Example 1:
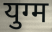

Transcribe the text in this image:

युग्म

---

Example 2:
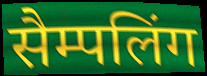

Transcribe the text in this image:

सैम्पलिंग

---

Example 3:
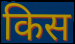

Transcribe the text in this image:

किस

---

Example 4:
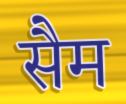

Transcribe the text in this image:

सैम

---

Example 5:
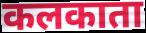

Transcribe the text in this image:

कलकाता